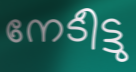
നേടീട്ടു